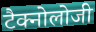
टैक्नोलोजी